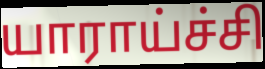
யாராய்ச்சி